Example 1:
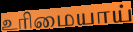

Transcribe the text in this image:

உரிமையாய்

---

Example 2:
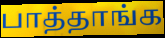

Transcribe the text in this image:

பாத்தாங்க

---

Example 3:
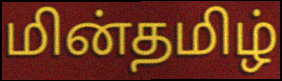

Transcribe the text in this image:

மின்தமிழ்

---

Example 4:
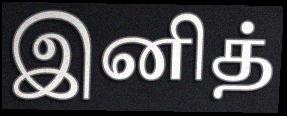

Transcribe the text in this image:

இனித்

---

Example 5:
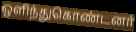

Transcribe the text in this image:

ஒளிந்துகொண்டனர்